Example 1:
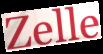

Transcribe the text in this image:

Zelle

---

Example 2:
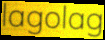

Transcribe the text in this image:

lagolag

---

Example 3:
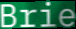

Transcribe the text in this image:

Brie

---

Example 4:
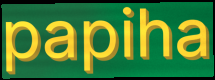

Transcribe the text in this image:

papiha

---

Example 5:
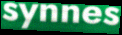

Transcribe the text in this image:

synnes